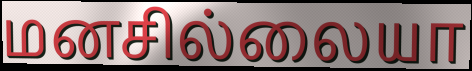
மனசில்லையா